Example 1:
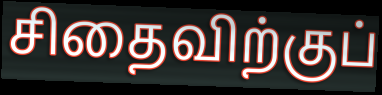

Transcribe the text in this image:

சிதைவிற்குப்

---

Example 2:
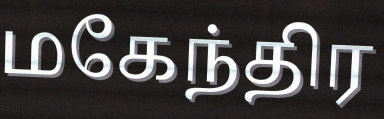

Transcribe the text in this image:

மகேந்திர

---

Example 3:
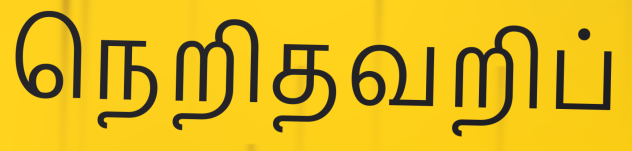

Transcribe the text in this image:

நெறிதவறிப்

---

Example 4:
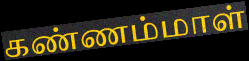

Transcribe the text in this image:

கண்ணம்மாள்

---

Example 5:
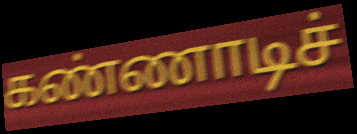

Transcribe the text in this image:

கண்ணாடிச்